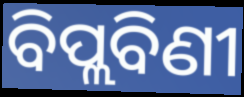
ବିପ୍ଲବିଣୀ